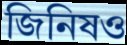
জিনিষও